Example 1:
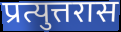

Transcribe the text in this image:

प्रत्युत्तरास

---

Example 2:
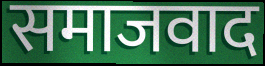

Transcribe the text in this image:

समाजवाद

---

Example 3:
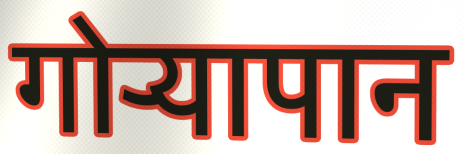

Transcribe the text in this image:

गोऱ्यापान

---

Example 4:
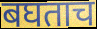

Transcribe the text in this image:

बघताच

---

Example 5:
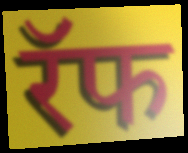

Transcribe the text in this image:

रॅफ